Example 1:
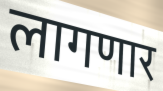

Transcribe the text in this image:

लागणार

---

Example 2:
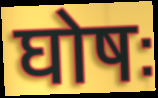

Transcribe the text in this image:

घोषः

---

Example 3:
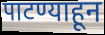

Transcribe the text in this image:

पाटण्याहून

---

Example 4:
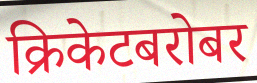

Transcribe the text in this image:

क्रिकेटबरोबर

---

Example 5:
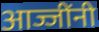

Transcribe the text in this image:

आज्जींनी